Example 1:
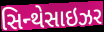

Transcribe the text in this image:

સિન્થેસાઇઝર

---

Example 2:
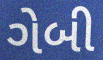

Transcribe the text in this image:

ગેબી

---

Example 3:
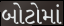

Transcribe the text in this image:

બોટોમાં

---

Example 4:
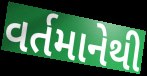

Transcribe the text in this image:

વર્તમાનેથી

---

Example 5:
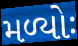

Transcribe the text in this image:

મળ્યોઃ